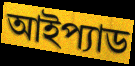
আইপ্যাড